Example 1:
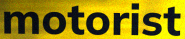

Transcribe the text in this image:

motorist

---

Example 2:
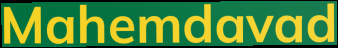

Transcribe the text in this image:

Mahemdavad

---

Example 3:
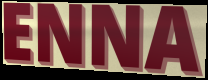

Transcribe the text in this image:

ENNA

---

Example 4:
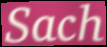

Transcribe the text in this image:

Sach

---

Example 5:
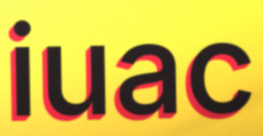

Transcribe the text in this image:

iuac